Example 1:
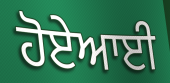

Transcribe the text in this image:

ਹੋਏਆਈ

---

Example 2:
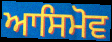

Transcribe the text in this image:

ਆਸਿਮੋਵ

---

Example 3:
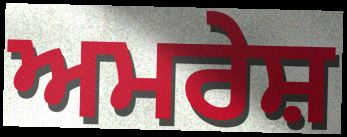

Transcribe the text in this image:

ਅਮਰੇਸ਼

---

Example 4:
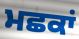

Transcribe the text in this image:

ਮਛਕਾਂ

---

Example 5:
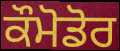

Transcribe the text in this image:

ਕੌਮੋਡੋਰ